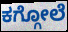
ಕಗ್ಗೋಲೆ